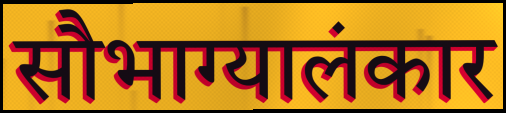
सौभाग्यालंकार